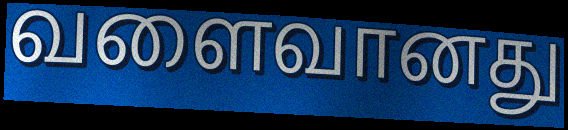
வளைவானது